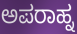
ಅಪರಾಹ್ನ